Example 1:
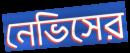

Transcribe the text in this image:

নেভিসের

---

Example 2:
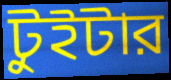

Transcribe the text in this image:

টুইটার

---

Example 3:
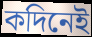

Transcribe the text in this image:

কদিনেই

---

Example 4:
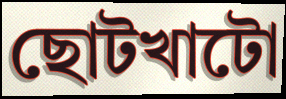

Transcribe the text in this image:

ছোটখাটো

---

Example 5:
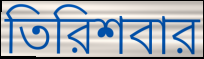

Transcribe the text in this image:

তিরিশবার